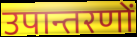
उपान्तरणों